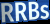
RRBs